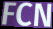
FCN